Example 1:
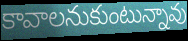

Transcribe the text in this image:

కావాలనుకుంటున్నావు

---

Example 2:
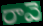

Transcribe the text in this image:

రావె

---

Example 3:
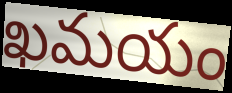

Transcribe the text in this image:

ఖమయం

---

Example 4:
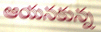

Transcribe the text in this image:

ఆయనకున్న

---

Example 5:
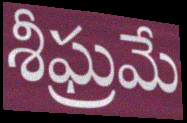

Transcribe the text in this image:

శీఘ్రమే